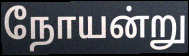
நோயன்று